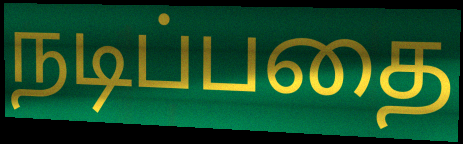
நடிப்பதை